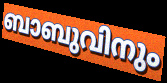
ബാബുവിനും